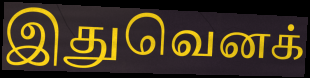
இதுவெனக்